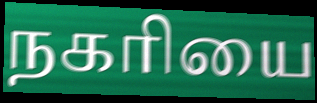
நகரியை